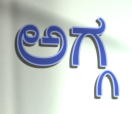
ಅಗ್ಗ